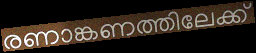
രണാങ്കണത്തിലേക്ക്